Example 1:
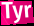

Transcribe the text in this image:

Tyr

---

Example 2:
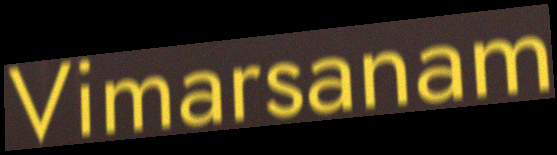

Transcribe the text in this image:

Vimarsanam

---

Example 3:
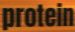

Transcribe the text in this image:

protein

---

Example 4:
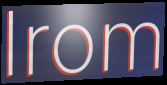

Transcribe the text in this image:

Irom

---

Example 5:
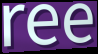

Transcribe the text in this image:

ree